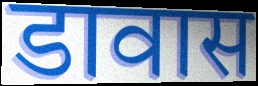
डावास